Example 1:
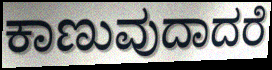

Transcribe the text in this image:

ಕಾಣುವುದಾದರೆ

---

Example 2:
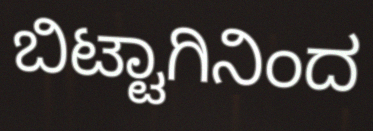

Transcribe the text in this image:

ಬಿಟ್ಟಾಗಿನಿಂದ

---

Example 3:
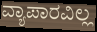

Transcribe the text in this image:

ವ್ಯಾಪಾರವಿಲ್ಲ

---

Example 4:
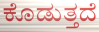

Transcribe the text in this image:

ಕೊಡುತ್ತದೆ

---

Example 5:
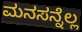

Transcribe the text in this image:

ಮನಸನ್ನೆಲ್ಲ